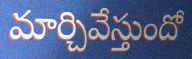
మార్చివేస్తుందో